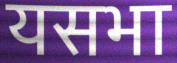
यसभा